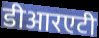
डीआरएटी